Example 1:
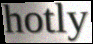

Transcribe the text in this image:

hotly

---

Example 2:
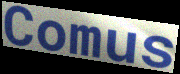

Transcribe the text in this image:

Comus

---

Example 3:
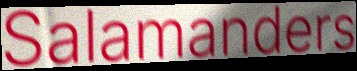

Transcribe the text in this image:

Salamanders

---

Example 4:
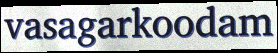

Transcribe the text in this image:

vasagarkoodam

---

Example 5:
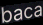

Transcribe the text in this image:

baca